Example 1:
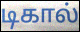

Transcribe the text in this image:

டிகால்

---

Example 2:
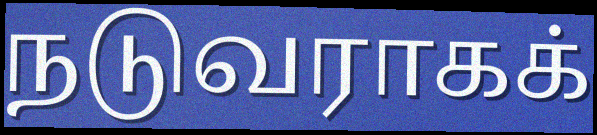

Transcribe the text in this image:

நடுவராகக்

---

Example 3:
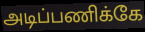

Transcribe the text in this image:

அடிப்பணிக்கே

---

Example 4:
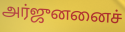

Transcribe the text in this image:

அர்ஜுனனைச்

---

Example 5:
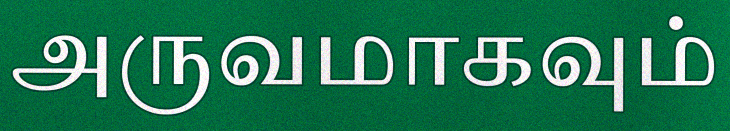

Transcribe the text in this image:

அருவமாகவும்